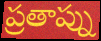
ప్రతాప్ను